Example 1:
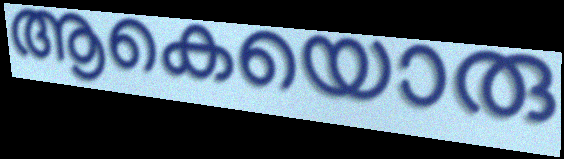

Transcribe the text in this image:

ആകെയൊരു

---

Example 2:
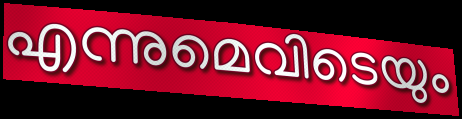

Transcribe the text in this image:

എന്നുമെവിടെയും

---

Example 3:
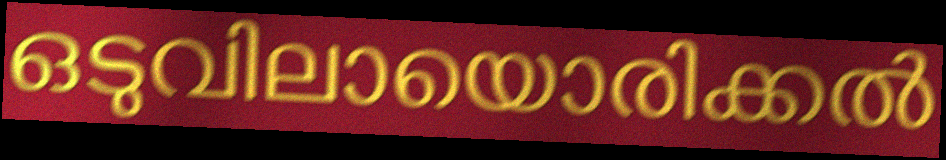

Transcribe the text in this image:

ഒടുവിലായൊരിക്കൽ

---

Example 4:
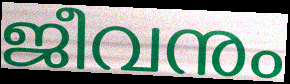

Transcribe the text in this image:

ജീവനും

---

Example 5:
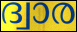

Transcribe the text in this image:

ദ്വാര